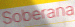
Soberana